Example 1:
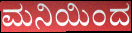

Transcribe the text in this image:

ಮನಿಯಿಂದ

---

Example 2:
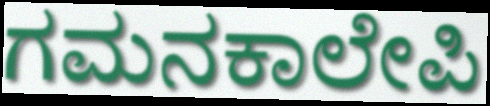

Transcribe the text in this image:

ಗಮನಕಾಲೇಪಿ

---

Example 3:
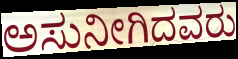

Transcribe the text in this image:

ಅಸುನೀಗಿದವರು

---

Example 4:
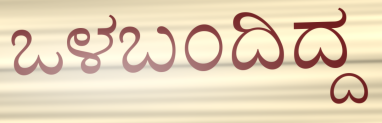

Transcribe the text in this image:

ಒಳಬಂದಿದ್ದ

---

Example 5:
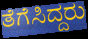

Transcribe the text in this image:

ತೆಗೆಸಿದ್ದರು